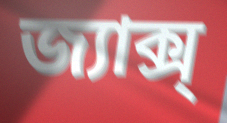
জ্যাক্স্